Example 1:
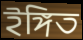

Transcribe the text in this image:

ইঙ্গিত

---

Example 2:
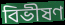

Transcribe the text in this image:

বিভীষণ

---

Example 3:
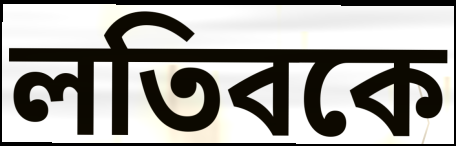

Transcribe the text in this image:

লতিবকে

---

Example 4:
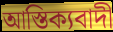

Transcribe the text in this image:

আস্তিক্যবাদী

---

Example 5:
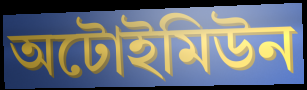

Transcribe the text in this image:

অটোইমিউন